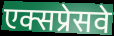
एक्सप्रेसवे